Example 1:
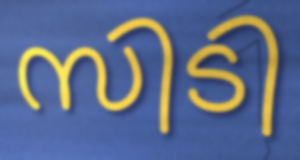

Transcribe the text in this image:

സിടി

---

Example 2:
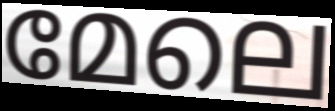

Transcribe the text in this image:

മേലെ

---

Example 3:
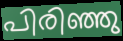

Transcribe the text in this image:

പിരിഞ്ഞു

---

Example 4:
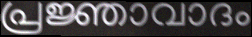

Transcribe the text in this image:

പ്രജ്ഞാവാദം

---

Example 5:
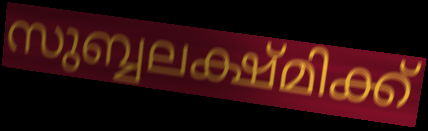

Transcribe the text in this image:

സുബ്ബലക്ഷ്മിക്ക്